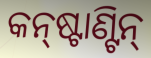
କନ୍‌ଷ୍ଟାଣ୍ଟିନ୍